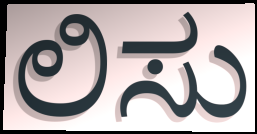
ಲಿಸು